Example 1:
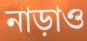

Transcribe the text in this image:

নাড়াও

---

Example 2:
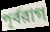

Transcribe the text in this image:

পূর্বরাগ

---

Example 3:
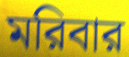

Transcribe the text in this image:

মরিবার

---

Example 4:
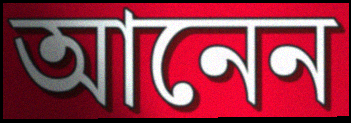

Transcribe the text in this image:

আনেন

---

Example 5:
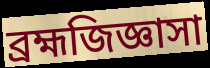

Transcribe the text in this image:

ব্রহ্মজিজ্ঞাসা